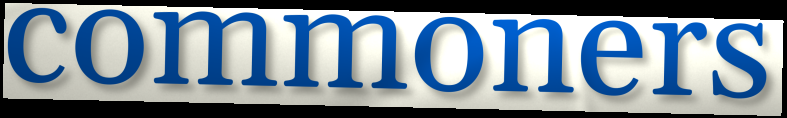
commoners